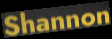
Shannon